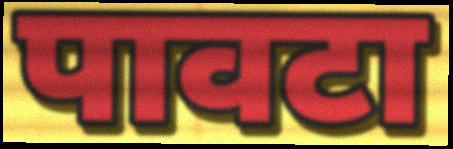
पावटा